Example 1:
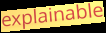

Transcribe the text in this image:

explainable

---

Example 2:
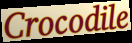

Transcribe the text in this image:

Crocodile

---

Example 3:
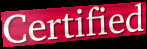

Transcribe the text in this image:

Certified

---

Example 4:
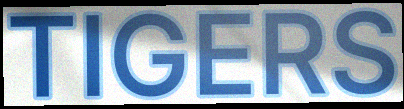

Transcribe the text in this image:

TIGERS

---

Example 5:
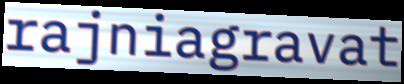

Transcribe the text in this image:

rajniagravat